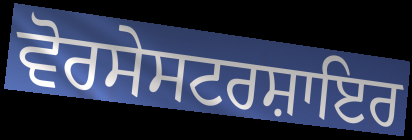
ਵੋਰਸੇਸਟਰਸ਼ਾਇਰ